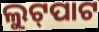
ଲୁଟ୍‍ପାଟ